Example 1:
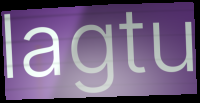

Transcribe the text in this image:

lagtu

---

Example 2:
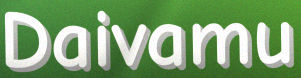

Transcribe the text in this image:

Daivamu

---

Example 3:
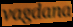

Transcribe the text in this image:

vagdana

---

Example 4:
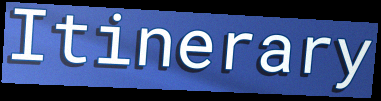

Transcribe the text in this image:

Itinerary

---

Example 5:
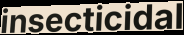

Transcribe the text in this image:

insecticidal